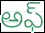
అఫ్